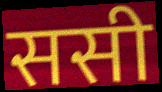
ससी